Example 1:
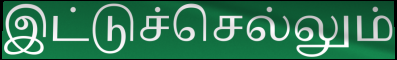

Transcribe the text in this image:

இட்டுச்செல்லும்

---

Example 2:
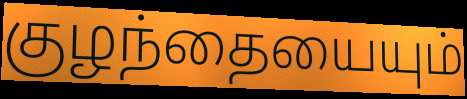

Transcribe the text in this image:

குழந்தையையும்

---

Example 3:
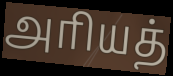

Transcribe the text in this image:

அரியத்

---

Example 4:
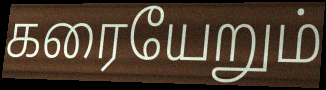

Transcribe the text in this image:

கரையேறும்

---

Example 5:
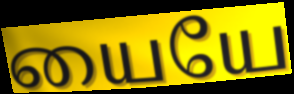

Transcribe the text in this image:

யையே